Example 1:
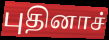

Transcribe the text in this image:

புதினாச்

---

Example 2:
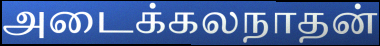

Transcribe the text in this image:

அடைக்கலநாதன்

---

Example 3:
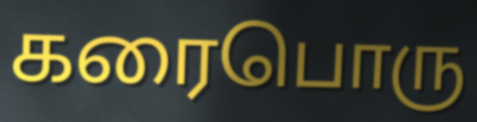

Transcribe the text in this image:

கரைபொரு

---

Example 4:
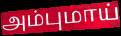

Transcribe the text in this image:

அம்புமாய்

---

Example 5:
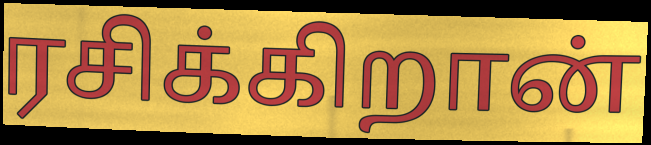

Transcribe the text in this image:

ரசிக்கிறான்